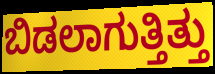
ಬಿಡಲಾಗುತ್ತಿತ್ತು